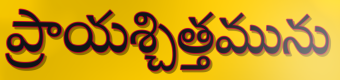
ప్రాయశ్చిత్తమును